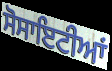
ਸੋਸਾਇਟੀਆਂ